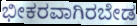
ಭೀಕರವಾಗಿರಬೇಡ